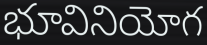
భూవినియోగ